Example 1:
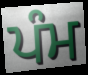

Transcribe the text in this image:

ਪੰਮ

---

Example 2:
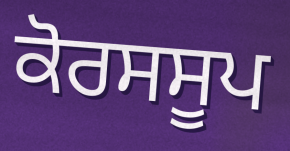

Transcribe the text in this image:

ਕੋਰਸਸੂਪ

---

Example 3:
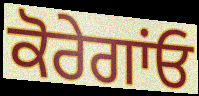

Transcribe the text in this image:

ਕੋਰੇਗਾਂਓ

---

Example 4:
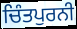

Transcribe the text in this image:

ਚਿੰਤਪੁਰਨੀ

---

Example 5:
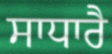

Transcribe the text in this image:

ਸਾਧਾਰੈ